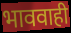
भाववाही